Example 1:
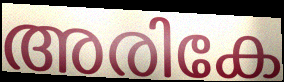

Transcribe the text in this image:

അരികേ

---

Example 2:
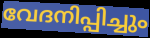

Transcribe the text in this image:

വേദനിപ്പിച്ചും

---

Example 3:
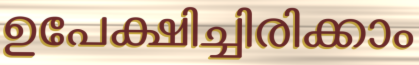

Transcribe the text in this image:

ഉപേക്ഷിച്ചിരിക്കാം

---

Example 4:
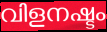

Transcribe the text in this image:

വിളനഷ്ടം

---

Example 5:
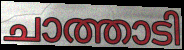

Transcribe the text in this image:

ചാത്താടി